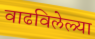
वाढविलेल्या